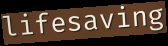
lifesaving